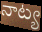
నాట్య